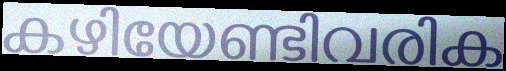
കഴിയേണ്ടിവരിക